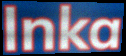
Inka